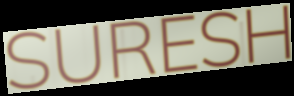
SURESH